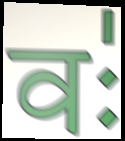
वः॑